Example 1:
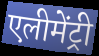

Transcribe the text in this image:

एलीमेंट्री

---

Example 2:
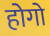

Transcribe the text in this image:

होगो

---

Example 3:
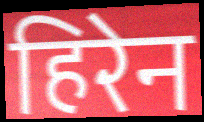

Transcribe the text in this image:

हिरेन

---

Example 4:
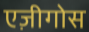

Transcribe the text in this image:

एज़ीगोस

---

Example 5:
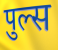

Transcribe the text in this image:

पुल्स